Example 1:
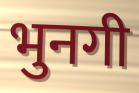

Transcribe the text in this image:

भुनगी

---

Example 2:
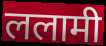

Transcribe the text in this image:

ललामी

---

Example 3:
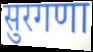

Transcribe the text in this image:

सुरगणा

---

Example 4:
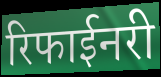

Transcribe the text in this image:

रिफाईनरी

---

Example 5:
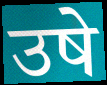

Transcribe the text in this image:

उषे